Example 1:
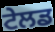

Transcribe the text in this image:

ਟੇਲਡ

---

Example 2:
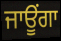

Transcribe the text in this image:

ਜਾਊਂਗਾ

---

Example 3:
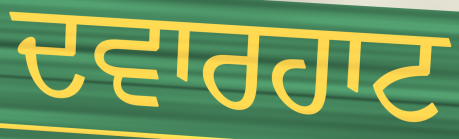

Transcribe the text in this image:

ਦਵਾਰਹਾਟ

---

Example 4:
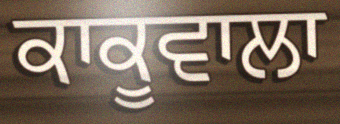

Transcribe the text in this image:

ਕਾਕੂਵਾਲਾ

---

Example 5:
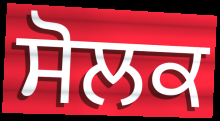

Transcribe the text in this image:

ਸੋਲਕ